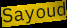
Sayoud